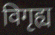
विगृह्य